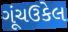
ગૂંચઉકેલ